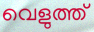
വെളുത്ത്